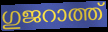
ഗുജറാത്ത്